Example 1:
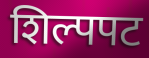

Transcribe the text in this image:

शिल्पपट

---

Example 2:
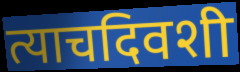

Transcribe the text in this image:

त्याचदिवशी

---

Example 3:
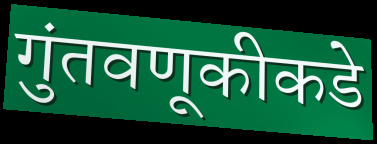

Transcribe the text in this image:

गुंतवणूकीकडे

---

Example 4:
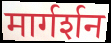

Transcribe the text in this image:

मार्गर्शन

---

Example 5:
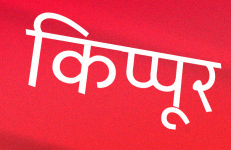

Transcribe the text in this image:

किप्पूर